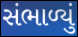
સંભાળ્યું